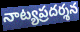
నాట్యప్రదర్శన